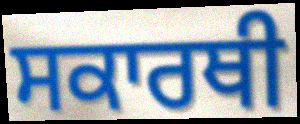
ਸਕਾਰਥੀ